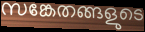
സങ്കേതങ്ങളുടെ